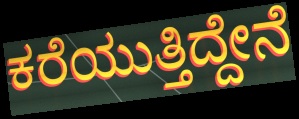
ಕರೆಯುತ್ತಿದ್ದೇನೆ